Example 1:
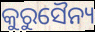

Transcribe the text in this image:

କୁରୁସୈନ୍ୟ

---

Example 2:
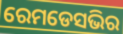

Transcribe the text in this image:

ରେମଡେସଭିର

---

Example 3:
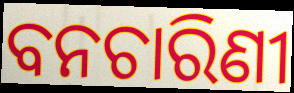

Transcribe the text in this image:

ବନଚାରିଣୀ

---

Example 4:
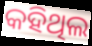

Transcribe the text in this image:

କହିଥିଲ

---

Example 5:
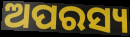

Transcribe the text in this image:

ଅପରସ୍ୟ